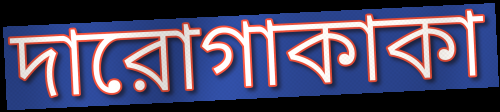
দারোগাকাকা